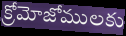
క్రోమోజోములకు